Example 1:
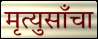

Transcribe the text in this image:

मृत्युसाँचा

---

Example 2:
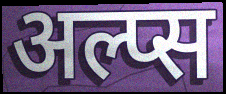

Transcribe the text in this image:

अल्प्स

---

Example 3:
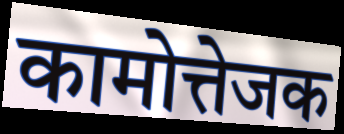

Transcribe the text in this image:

कामोत्तेजक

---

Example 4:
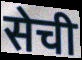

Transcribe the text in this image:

सेची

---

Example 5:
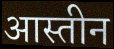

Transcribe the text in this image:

आस्तीन